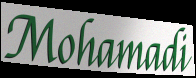
Mohamadi